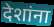
देशांना